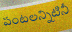
పంటలన్నిటినీ